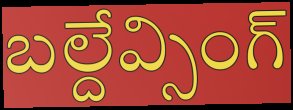
బల్దేవ్సింగ్